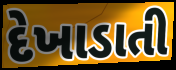
દેખાડાતી